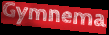
Gymnema